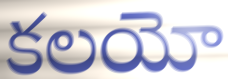
కలయో